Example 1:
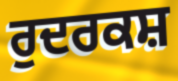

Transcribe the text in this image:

ਰੁਦਰਕਸ਼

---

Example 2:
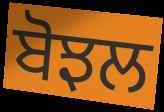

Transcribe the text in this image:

ਬੋਝਲ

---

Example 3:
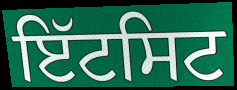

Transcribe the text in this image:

ਇੱਟਸਿਟ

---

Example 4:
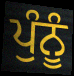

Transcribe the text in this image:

ਪੁੰਨੂੰ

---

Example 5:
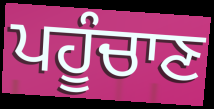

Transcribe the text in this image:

ਪਹੂੰਚਾਣ